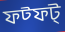
ফট্ফট্